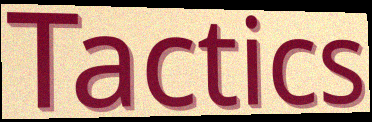
Tactics